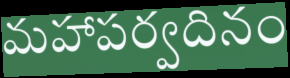
మహాపర్వదినం